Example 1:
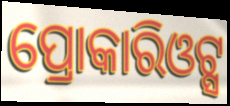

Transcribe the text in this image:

ପ୍ରୋକାରିଓଟ୍ସ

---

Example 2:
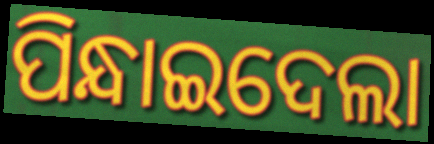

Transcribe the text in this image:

ପିନ୍ଧାଇଦେଲା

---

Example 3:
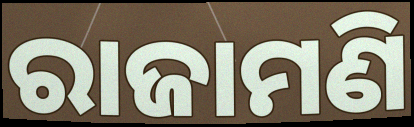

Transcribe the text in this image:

ରାଜାମଣି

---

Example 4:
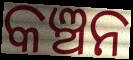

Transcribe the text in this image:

କଞ୍ଚନ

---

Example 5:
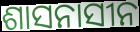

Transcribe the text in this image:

ଶାସନାସୀନ